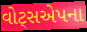
વોટ્સએપના